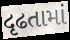
દૃઢતામાં